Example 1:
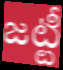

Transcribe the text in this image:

జట్టీ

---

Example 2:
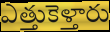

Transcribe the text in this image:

ఎత్తుకెళ్తారు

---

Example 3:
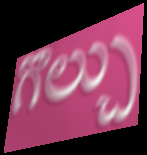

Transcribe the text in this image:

గొల్చు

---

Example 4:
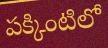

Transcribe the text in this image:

పక్కింటిలో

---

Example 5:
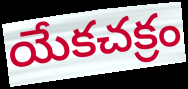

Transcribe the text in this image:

యేకచక్రం